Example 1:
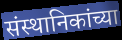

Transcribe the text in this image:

संस्थानिकांच्या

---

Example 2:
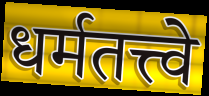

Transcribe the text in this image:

धर्मतत्त्वे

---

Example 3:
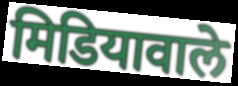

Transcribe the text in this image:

मिडियावाले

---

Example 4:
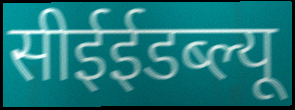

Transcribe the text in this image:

सीईईडब्ल्यू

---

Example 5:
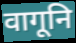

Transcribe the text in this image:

वागूनि